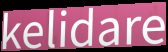
kelidare